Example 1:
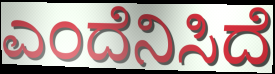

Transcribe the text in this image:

ಎಂದೆನಿಸಿದೆ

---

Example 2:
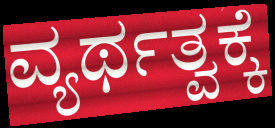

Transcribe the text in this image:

ವ್ಯರ್ಥತ್ವಕ್ಕೆ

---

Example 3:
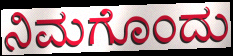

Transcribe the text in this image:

ನಿಮಗೊಂದು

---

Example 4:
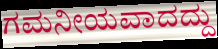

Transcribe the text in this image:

ಗಮನೀಯವಾದದ್ದು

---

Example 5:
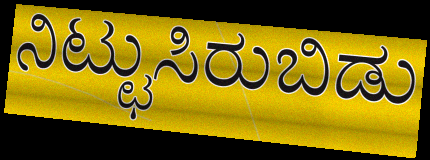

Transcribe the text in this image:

ನಿಟ್ಟುಸಿರುಬಿಡು